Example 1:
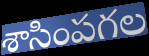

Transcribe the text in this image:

శాసింపగల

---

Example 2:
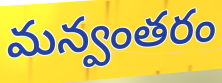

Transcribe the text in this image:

మన్వంతరం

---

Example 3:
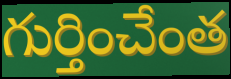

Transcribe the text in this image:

గుర్తించేంత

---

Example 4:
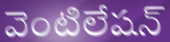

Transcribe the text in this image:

వెంటిలేషన్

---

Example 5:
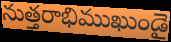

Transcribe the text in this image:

నుత్తరాభిముఖుండై